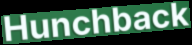
Hunchback